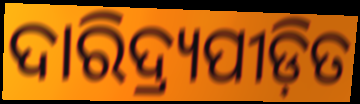
ଦାରିଦ୍ର୍ୟପୀଡ଼ିତ